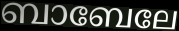
ബാബേലേ